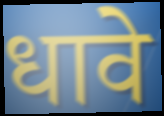
धावे